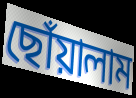
ছোঁয়ালাম